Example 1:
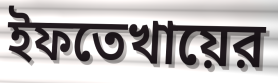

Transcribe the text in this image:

ইফতেখায়ের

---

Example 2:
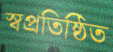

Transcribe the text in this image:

স্বপ্রতিষ্ঠিত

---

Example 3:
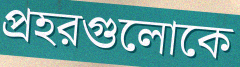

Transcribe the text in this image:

প্রহরগুলোকে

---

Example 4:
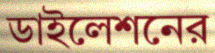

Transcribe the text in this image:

ডাইলেশনের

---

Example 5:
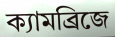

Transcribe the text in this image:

ক্যামব্রিজে